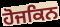
ਹੋਜਕਿਨ